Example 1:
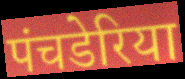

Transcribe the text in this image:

पंचडेरिया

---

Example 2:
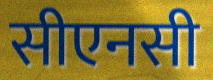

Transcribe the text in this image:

सीएनसी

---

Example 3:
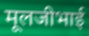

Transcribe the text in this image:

मूलजीभाई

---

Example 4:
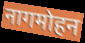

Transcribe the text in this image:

नागमोहन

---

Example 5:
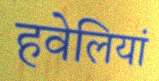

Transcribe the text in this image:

हवेलियां